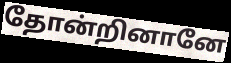
தோன்றினானே